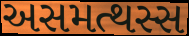
અસમત્થસ્સ